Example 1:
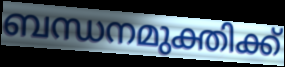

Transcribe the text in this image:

ബന്ധനമുക്തിക്ക്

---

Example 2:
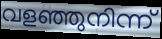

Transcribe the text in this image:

വളഞ്ഞുനിന്ന്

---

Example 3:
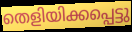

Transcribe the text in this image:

തെളിയിക്കപ്പെട്ടു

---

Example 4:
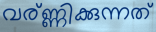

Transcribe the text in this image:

വര്ണ്ണിക്കുന്നത്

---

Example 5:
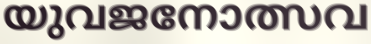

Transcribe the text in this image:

യുവജനോത്സവ